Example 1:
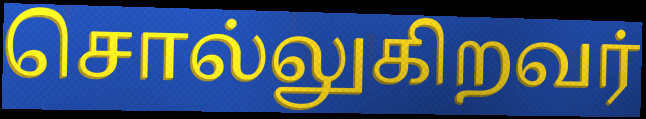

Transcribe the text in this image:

சொல்லுகிறவர்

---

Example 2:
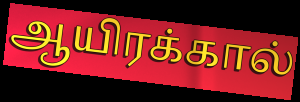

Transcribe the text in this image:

ஆயிரக்கால்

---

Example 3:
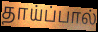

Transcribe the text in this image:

தாய்ப்பால்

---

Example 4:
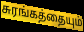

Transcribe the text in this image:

சுரங்கத்தையும்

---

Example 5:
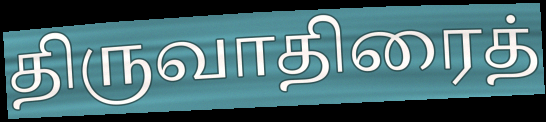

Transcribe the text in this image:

திருவாதிரைத்